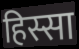
हिस्सा